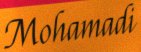
Mohamadi